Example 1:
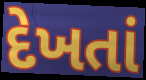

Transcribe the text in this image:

દેખતાં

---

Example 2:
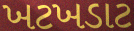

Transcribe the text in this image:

ખટખડાટ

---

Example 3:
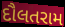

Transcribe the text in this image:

દૌલતરામ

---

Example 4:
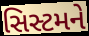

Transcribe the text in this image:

સિસ્ટમને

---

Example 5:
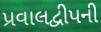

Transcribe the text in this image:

પ્રવાલદ્વીપની